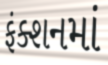
ફંક્શનમાં